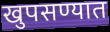
खुपसण्यात